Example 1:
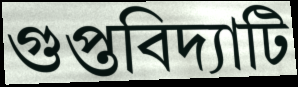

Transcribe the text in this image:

গুপ্তবিদ্যাটি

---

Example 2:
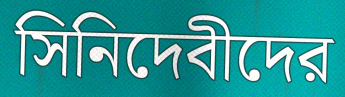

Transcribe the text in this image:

সিনিদেবীদের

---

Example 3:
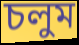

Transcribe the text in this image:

চলুম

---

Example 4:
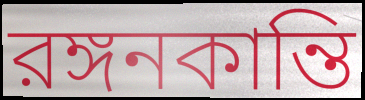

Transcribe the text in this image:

রঙ্গনকান্তি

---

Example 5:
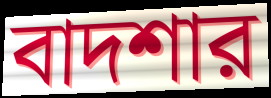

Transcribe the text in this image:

বাদশার